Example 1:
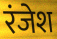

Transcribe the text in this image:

रंजेश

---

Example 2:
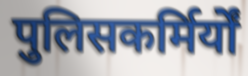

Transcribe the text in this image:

पुलिसकर्मिर्यों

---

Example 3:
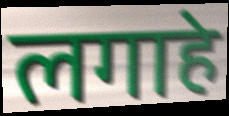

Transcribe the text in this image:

लगाहे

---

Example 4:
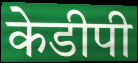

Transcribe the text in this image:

केडीपी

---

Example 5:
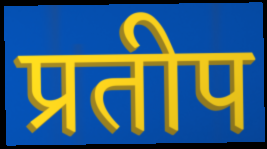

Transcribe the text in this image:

प्रतीप